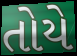
તોયે